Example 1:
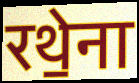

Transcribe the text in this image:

रथे॒ना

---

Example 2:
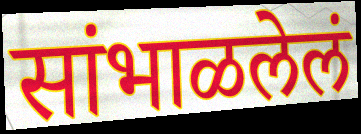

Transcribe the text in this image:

सांभाळलेलं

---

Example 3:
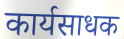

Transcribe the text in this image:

कार्यसाधक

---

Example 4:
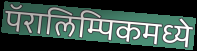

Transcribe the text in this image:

पॅरालिम्पिकमध्ये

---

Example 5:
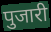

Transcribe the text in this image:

पुजारी